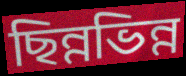
ছিন্নভিন্ন